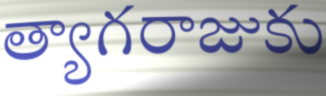
త్యాగరాజుకు